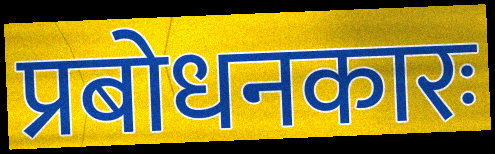
प्रबोधनकारः